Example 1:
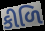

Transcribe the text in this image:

કીળિ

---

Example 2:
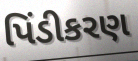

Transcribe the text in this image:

પિંડીકરણ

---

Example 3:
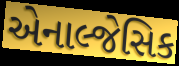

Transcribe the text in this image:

એનાલ્જેસિક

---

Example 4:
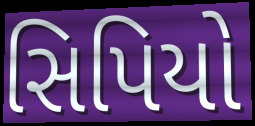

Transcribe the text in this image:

સિપિયો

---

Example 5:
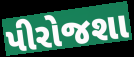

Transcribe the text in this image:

પીરોજશા